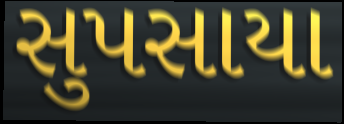
સુપસાયા